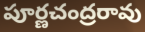
పూర్ణచంద్రరావు